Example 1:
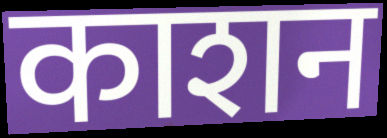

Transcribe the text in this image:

काशन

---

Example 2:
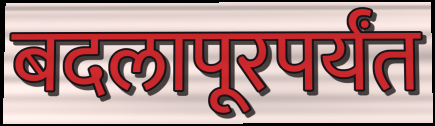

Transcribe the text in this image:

बदलापूरपर्यंत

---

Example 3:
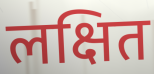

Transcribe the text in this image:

लक्षित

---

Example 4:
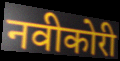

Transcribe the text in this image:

नवीकोरी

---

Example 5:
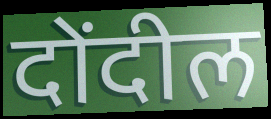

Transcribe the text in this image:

दोंदील